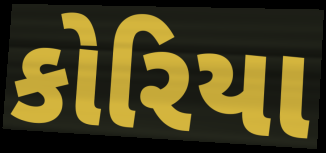
કોરિયા